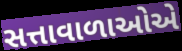
સત્તાવાળાઓએ